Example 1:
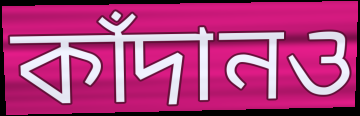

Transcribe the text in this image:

কাঁদানও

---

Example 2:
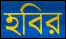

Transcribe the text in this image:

হবির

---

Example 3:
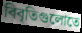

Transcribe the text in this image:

বিবৃতিগুলোতে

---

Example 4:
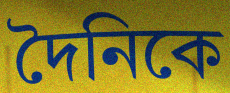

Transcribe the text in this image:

দৈনিকে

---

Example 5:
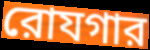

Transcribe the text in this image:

রোযগার